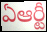
ఏఆర్టీ